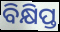
ବିକ୍ଷିପ୍ତ